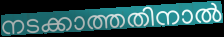
നടക്കാത്തതിനാൽ